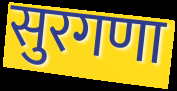
सुरगणा